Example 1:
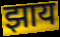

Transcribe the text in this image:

झाय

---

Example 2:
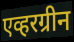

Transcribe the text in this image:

एव्हरग्रीन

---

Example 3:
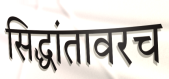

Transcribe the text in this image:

सिद्धांतावरच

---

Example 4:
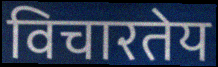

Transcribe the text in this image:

विचारतेय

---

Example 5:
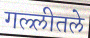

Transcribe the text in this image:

गल्लीतले